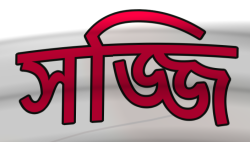
সজ্জি